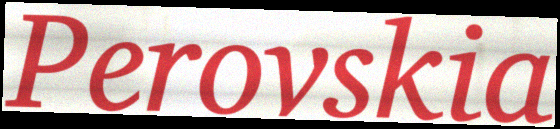
Perovskia